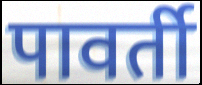
पावर्ती